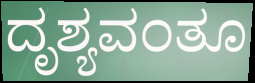
ದೃಶ್ಯವಂತೂ